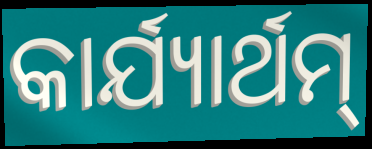
କାର୍ଯ୍ୟାର୍ଥମ୍